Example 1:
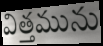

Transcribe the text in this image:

విత్తమును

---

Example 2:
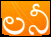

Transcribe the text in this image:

లనీ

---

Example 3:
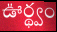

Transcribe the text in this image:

ఊర్థ్వం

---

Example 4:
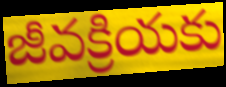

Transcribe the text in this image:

జీవక్రియకు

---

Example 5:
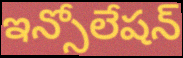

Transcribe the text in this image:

ఇన్సోలేషన్